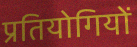
प्रतियोगियों